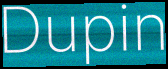
Dupin